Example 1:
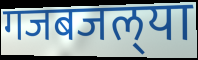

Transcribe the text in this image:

गजबजल्या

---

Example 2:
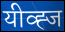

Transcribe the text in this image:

यीव्ह्ज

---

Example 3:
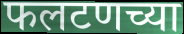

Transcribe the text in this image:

फलटणच्या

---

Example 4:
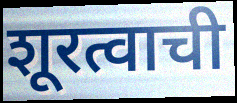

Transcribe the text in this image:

शूरत्वाची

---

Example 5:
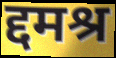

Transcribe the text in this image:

द्दमश्र